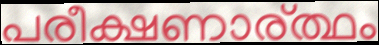
പരീക്ഷണാര്ത്ഥം